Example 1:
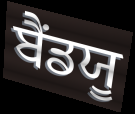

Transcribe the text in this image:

ਬੈਂਡਯੂ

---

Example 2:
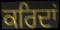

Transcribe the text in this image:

ਕਰਿਦਾਂ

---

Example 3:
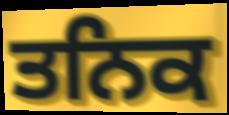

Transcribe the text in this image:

ਤਨਿਕ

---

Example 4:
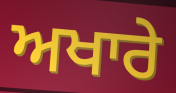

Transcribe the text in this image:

ਅਖਾਰੇ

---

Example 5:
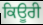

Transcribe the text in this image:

ਕਿਊਰੀ